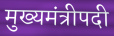
मुख्यमंत्रीपदी